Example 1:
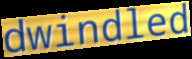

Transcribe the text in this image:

dwindled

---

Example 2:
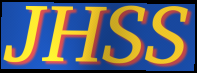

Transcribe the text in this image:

JHSS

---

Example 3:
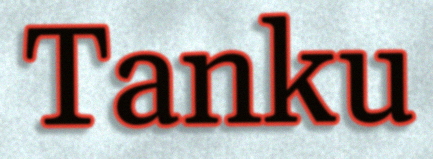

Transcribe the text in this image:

Tanku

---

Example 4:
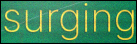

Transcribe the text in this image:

surging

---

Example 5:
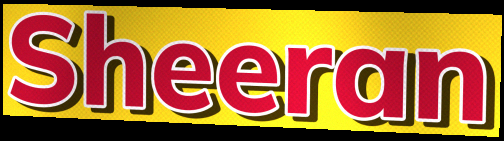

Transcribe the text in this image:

Sheeran